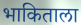
भाकिताला